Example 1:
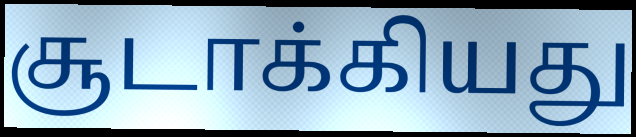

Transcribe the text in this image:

சூடாக்கியது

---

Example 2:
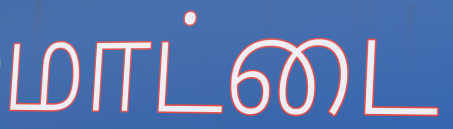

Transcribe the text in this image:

மாட்டை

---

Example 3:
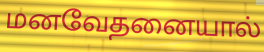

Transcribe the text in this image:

மனவேதனையால்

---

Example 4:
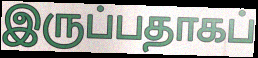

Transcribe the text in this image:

இருப்பதாகப்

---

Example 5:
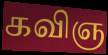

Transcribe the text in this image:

கவிஞ